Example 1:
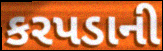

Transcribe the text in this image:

કરપડાની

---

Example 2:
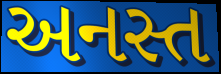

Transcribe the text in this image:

અનસ્ત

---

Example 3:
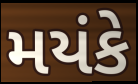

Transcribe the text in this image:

મયંકે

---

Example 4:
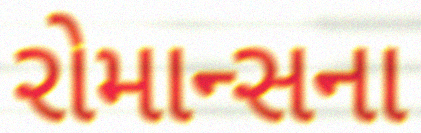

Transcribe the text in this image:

રોમાન્સના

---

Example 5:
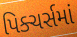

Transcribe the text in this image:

પિક્ચર્સમાં